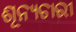
ଶୂନ୍ୟଚାରୀ